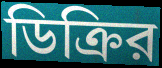
ডিক্রির